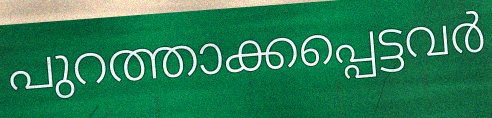
പുറത്താക്കപ്പെട്ടവർ